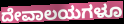
ದೇವಾಲಯಗಳೂ